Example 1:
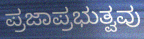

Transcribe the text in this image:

ಪ್ರಜಾಪ್ರಭುತ್ವವು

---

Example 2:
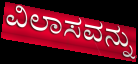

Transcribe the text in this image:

ವಿಲಾಸವನ್ನು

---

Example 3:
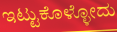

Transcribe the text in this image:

ಇಟ್ಟುಕೊಳ್ಳೋದು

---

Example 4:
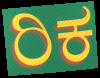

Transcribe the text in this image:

ರಿಕ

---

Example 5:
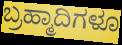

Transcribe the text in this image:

ಬ್ರಹ್ಮಾದಿಗಳೂ